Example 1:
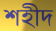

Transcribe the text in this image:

শহীদ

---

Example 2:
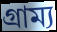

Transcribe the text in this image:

গ্ৰাম্য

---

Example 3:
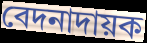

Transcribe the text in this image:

বেদনাদায়ক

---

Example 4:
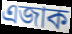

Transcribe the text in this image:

এজাক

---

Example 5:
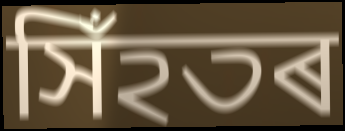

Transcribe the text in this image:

সিঁহতৰ